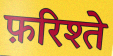
फ़रिश्ते